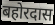
बहोरदास